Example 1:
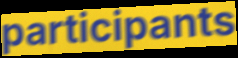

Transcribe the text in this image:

participants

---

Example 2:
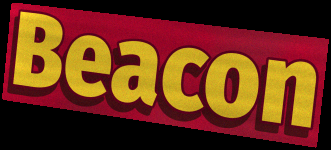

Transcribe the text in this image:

Beacon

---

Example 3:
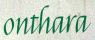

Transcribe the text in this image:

onthara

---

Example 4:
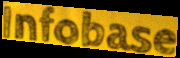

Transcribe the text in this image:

Infobase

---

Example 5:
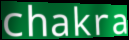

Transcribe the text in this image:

chakra